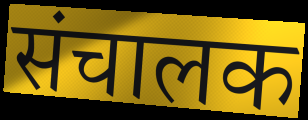
संचालक